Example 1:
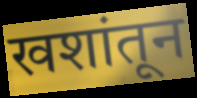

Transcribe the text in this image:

खशांतून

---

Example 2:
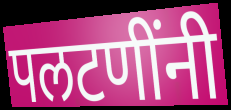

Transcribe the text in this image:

पलटणींनी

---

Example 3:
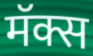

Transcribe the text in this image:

मॅक्स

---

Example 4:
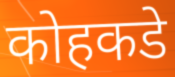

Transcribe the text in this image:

कोहकडे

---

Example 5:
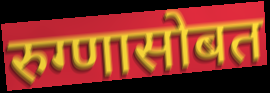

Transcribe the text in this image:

रुग्णासोबत